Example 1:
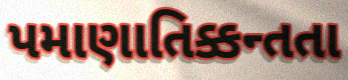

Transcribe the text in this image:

પમાણાતિક્કન્તતા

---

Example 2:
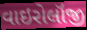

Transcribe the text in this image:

વાઇરોલૉજી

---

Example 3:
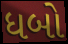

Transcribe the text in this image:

ધબો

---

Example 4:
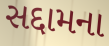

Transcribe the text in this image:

સદ્દામના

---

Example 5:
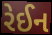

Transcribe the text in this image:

રેઈન